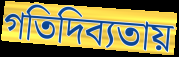
গতিদিব্যতায়